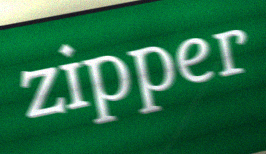
zipper